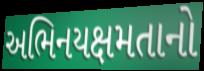
અભિનયક્ષમતાનો